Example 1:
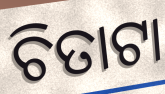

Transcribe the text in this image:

ଚିତାଟା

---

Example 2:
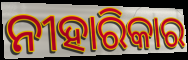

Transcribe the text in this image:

ନୀହାରିକାର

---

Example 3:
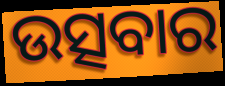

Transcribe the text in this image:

ଉତ୍ସବାର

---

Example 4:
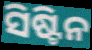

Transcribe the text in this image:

ସିଷ୍ଟିନ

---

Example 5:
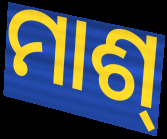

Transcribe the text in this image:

ମାଶ୍